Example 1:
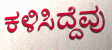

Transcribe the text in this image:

ಕಳಿಸಿದ್ದೆವು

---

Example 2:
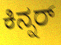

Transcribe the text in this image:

ಕಿನ್ನರ್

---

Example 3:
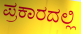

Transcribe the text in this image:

ಪ್ರಕಾರದಲ್ಲಿ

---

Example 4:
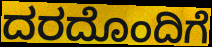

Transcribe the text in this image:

ದರದೊಂದಿಗೆ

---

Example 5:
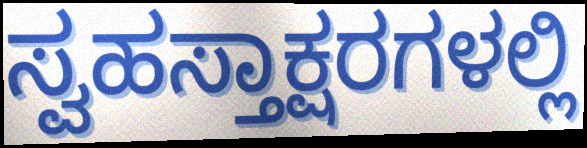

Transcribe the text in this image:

ಸ್ವಹಸ್ತಾಕ್ಷರಗಳಲ್ಲಿ